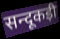
सन्दूकड़ी